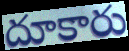
దూకారు